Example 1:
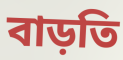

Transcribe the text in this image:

বাড়তি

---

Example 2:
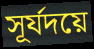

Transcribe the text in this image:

সূর্যদয়ে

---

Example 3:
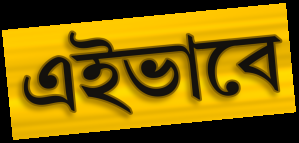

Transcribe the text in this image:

এইভাবে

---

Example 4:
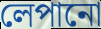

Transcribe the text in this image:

লেপানো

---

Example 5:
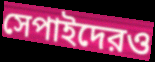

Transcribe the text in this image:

সেপাইদেরও